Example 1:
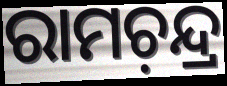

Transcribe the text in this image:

ରାମଚ଼ନ୍ଦ୍ର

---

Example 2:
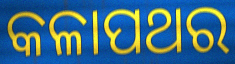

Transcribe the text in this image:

କଳାପଥର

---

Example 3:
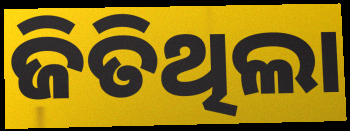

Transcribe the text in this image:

ଜିତିଥିଲା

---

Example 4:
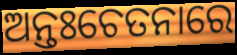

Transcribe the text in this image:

ଅନ୍ତଃଚେତନାରେ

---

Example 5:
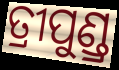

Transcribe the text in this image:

ତ୍ରୀପୁଣ୍ଡ୍ର